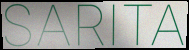
SARITA